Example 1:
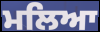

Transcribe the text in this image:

ਮਲਿਆ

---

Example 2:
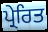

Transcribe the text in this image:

ਪ੍ਰੇਰਿਤ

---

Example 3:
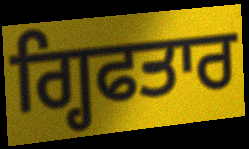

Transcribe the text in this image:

ਗ੍ਹਿਫਤਾਰ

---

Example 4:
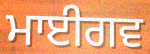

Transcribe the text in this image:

ਮਾਈਗਵ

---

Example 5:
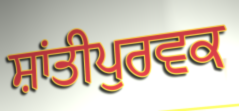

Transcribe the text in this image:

ਸ਼ਾਂਤੀਪੁਰਵਕ